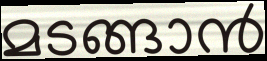
മടങ്ങാൻ